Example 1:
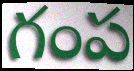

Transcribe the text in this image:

గంప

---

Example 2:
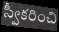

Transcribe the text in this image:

స్వీకరించి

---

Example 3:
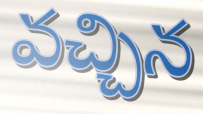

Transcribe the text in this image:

వచ్చిన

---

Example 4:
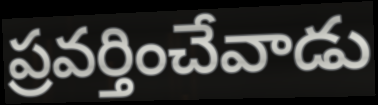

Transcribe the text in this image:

ప్రవర్తించేవాడు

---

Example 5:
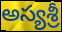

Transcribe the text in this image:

అస్యశ్రీ